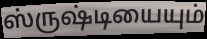
ஸ்ருஷ்டியையும்